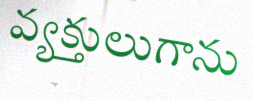
వ్యక్తులుగాను